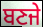
ਬਣਜੇ